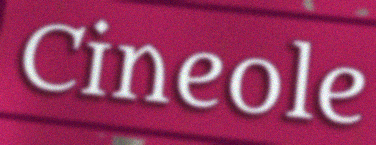
Cineole